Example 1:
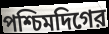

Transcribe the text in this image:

পশ্চিমদিগের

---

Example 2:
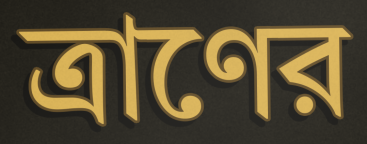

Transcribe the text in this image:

ত্রাণের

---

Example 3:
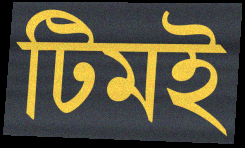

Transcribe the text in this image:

টিমই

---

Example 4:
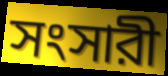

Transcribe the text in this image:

সংসারী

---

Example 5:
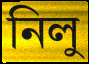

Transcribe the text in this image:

নিলু